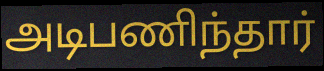
அடிபணிந்தார்